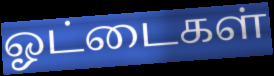
ஓட்டைகள்